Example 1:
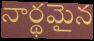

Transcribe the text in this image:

నార్థమైన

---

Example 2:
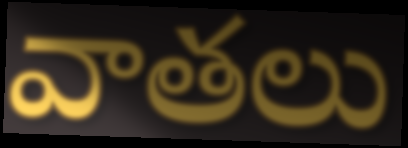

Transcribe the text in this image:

వాతలు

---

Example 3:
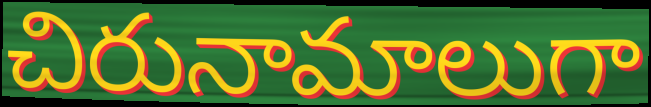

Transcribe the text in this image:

చిరునామాలుగా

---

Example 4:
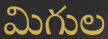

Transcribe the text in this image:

మిగుల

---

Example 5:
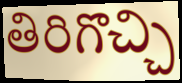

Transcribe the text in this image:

తిరిగొచ్చి